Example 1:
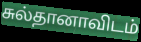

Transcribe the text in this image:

சுல்தானாவிடம்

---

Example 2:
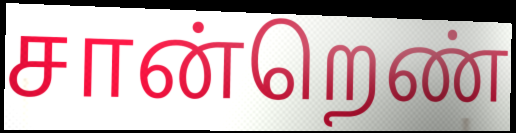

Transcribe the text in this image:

சான்றெண்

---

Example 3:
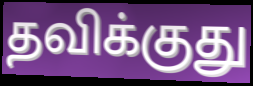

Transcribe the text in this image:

தவிக்குது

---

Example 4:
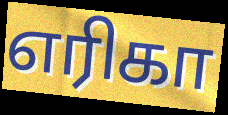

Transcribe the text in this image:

எரிகா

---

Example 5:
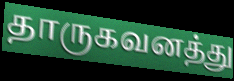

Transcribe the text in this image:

தாருகவனத்து